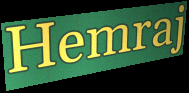
Hemraj